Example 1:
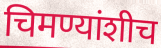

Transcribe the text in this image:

चिमण्यांशीच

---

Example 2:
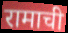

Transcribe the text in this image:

रामाची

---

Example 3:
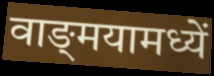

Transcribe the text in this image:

वाङ्‌मयामध्यें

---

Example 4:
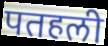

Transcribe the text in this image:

पतहली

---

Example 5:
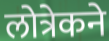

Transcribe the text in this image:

लोत्रेकने